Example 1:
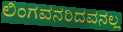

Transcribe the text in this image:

ಲಿಂಗವನರಿದವನಲ್ಲ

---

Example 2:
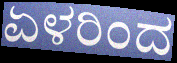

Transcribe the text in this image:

ಏಳರಿಂದ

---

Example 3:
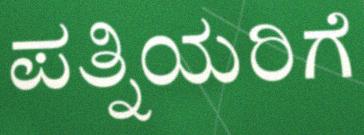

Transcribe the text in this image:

ಪತ್ನಿಯರಿಗೆ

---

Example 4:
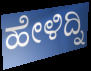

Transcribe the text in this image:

ಹೇಳಿದ್ನಿ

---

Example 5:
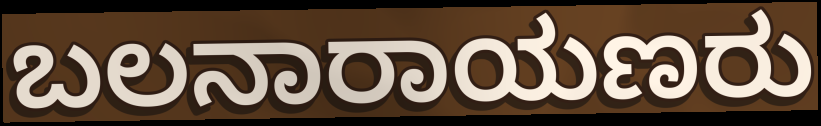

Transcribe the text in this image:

ಬಲನಾರಾಯಣರು